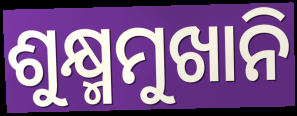
ଶୁକ୍ଷ୍ମମୁଖାନି